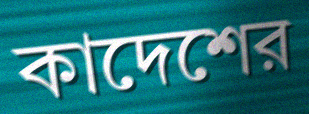
কাদেশের